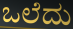
ಒಲೆದು